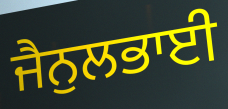
ਜੈਨੁਲਭਾਈ